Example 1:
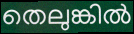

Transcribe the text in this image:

തെലുങ്കിൽ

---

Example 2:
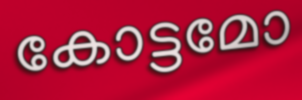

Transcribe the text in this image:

കോട്ടമോ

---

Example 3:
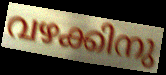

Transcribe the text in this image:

വഴക്കിനു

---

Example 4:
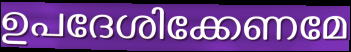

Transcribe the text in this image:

ഉപദേശിക്കേണമേ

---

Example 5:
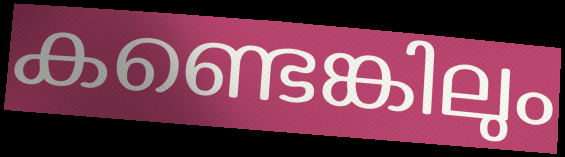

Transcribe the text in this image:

കണ്ടെങ്കിലും